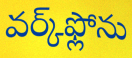
వర్క్‌ఫ్లోను